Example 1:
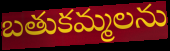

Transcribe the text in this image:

బతుకమ్మలను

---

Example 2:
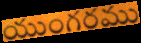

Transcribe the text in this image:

యుంగరము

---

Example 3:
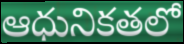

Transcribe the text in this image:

ఆధునికతలో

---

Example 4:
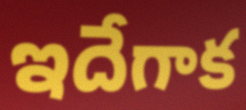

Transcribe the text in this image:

ఇదేగాక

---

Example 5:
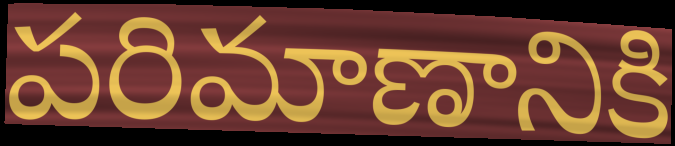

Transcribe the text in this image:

పరిమాణానికి